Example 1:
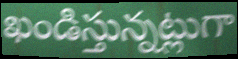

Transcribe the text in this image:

ఖండిస్తున్నట్లుగా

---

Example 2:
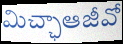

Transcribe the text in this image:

మిచ్ఛాఆజీవో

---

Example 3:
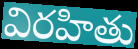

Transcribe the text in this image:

విరహితు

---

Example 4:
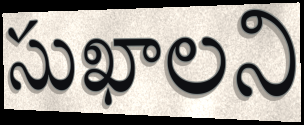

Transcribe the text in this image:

సుఖాలని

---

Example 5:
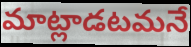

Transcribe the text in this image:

మాట్లాడటమనే